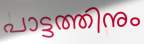
പാട്ടത്തിനും